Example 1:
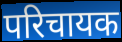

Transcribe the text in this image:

परिचायक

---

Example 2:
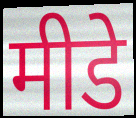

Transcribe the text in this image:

मीडे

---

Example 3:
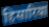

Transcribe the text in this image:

हिसारिया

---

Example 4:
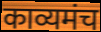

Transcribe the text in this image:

काव्यमंच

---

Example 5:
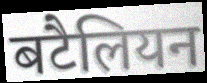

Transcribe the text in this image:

बटैलियन